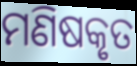
ମଣିଷକୃତ